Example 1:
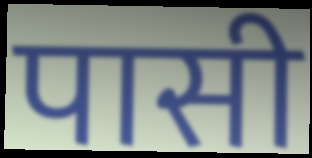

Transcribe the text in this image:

पासी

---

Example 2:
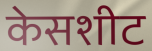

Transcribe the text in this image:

केसशीट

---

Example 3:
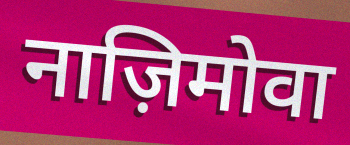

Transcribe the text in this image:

नाज़िमोवा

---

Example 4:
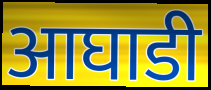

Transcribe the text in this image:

आघाडी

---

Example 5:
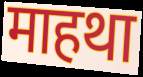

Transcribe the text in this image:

माहथा